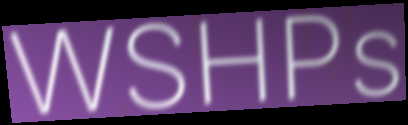
WSHPs